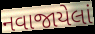
નવાજાયેલાં